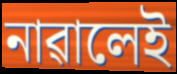
নাৱালেই